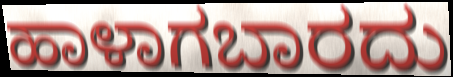
ಹಾಳಾಗಬಾರದು